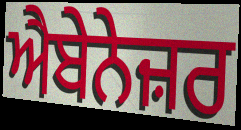
ਐਬੇਨੇਜ਼ਰ